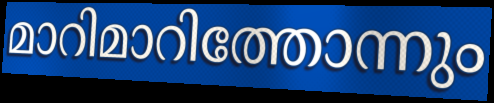
മാറിമാറിത്തോന്നും